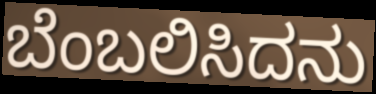
ಬೆಂಬಲಿಸಿದನು